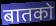
बातको